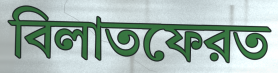
বিলাতফেরত